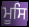
ਮੂਸਿ